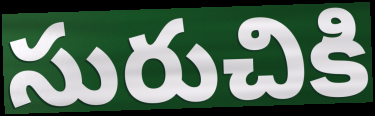
సురుచికి